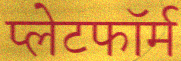
प्‍लेटफॉर्म